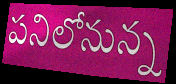
పనిలోనున్న